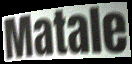
Matale